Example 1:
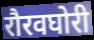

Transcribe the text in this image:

रौरवघोरी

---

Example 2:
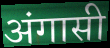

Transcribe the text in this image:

अंगासी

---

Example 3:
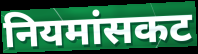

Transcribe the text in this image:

नियमांसकट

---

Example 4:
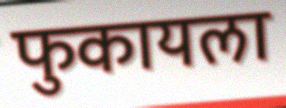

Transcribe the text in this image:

फुकायला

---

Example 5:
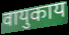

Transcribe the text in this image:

वायुकाय